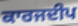
ਕਾਰਜਦੀਪ